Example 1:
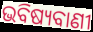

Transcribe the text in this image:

ଭବିଷ୍ଯବାଣୀ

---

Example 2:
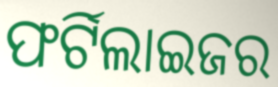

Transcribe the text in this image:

ଫର୍ଟିଲାଇଜର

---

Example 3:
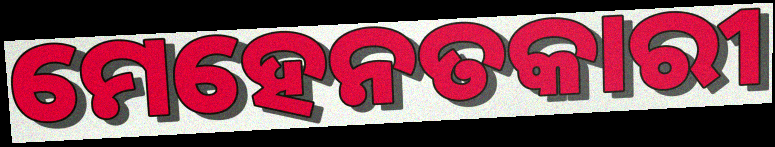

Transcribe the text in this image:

ମେହେନତକାରୀ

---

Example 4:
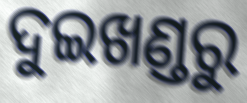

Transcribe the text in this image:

ଦୁଇଖଣ୍ଡରୁ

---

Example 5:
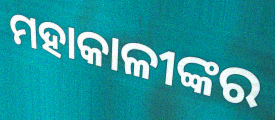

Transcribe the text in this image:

ମହାକାଳୀଙ୍କର